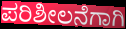
ಪರಿಶೀಲನೆಗಾಗಿ